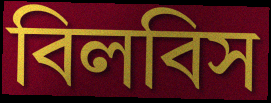
বিলবিস